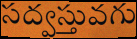
సద్వస్తువగు